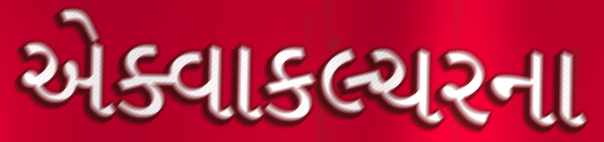
એક્વાકલ્ચરના